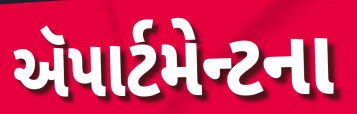
ઍપાર્ટમેન્ટના